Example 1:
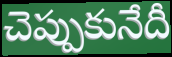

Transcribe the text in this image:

చెప్పుకునేదీ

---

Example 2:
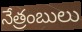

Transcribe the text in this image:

నేత్రంబులు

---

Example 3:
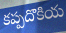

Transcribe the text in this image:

కప్పదొకియ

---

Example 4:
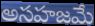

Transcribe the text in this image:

అసహజమే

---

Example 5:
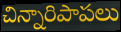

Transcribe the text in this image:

చిన్నారిపాపలు